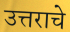
उत्तराचे